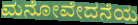
ಮನೋವೇದನೆಯ